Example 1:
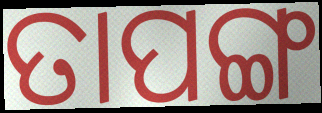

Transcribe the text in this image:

ତାପଙ୍ଗ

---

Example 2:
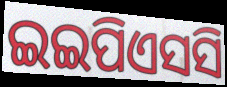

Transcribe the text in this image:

ଇଇପିଏସସି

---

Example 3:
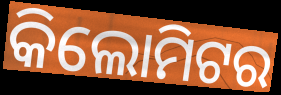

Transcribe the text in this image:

କିଲୋମିଟର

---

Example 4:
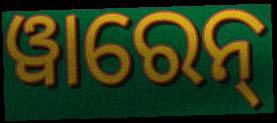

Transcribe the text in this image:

ୱାରେନ୍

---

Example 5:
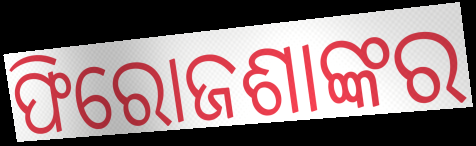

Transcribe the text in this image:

ଫିରୋଜଶାଙ୍କର